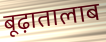
बूढ़ातालाब